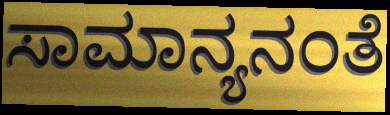
ಸಾಮಾನ್ಯನಂತೆ